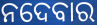
ନଦେବାର